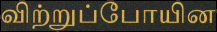
விற்றுப்போயின